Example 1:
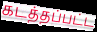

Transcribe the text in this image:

கடத்தப்பட்ட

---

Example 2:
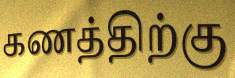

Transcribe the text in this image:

கணத்திற்கு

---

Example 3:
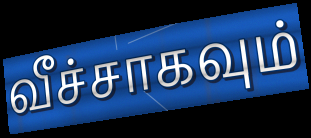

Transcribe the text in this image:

வீச்சாகவும்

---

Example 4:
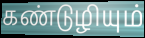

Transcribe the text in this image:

கண்டுழியும்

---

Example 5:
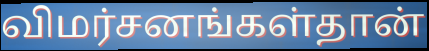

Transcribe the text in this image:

விமர்சனங்கள்தான்